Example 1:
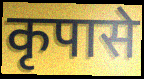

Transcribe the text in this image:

कृपासे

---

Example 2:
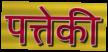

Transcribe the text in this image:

पत्तेकी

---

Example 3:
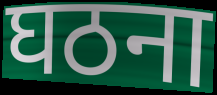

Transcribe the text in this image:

घठना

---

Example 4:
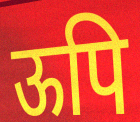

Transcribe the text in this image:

ऊपि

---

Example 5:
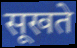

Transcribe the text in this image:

सूखते